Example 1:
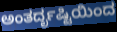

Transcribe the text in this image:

ಅಂತರ್ದೃಷ್ಟಿಯಿಂದ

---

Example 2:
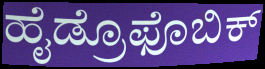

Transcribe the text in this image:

ಹೈಡ್ರೊಫೊಬಿಕ್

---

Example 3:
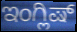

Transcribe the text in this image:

ಇಂಗ್ಲಿಷ್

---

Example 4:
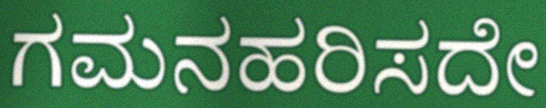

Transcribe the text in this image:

ಗಮನಹರಿಸದೇ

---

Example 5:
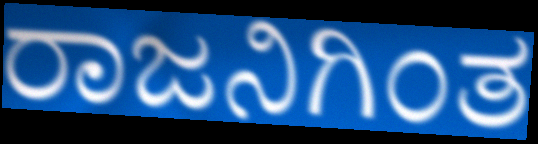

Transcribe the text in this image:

ರಾಜನಿಗಿಂತ